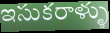
ఇసుకరాళ్ళు